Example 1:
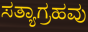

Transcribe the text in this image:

ಸತ್ಯಾಗ್ರಹವು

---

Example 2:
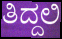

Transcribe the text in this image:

ತಿದ್ದಲಿ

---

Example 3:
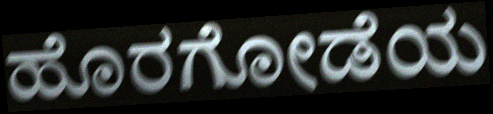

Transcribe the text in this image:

ಹೊರಗೋಡೆಯ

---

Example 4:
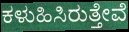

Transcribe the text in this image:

ಕಳುಹಿಸಿರುತ್ತೇವೆ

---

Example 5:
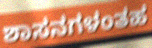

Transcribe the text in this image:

ಶಾಸನಗಳಂತಹ